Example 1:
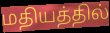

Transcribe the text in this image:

மதியத்தில்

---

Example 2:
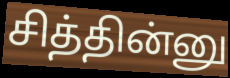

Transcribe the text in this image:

சித்தின்னு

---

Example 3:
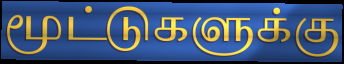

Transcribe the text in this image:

மூட்டுகளுக்கு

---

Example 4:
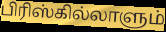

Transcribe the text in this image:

பிரிஸ்கில்லாளும்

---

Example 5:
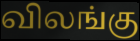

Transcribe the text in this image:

விலங்கு